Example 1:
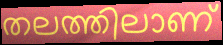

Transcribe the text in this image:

തലത്തിലാണ്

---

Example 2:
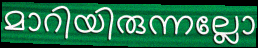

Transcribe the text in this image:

മാറിയിരുന്നല്ലോ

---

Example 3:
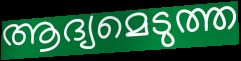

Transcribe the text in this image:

ആദ്യമെടുത്ത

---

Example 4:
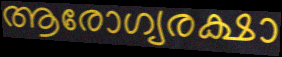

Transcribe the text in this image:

ആരോഗ്യരക്ഷാ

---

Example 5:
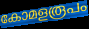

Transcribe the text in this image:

കോമളരൂപം